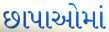
છાપાઓમાં